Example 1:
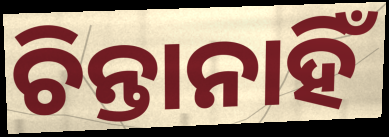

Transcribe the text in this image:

ଚିନ୍ତାନାହିଁ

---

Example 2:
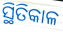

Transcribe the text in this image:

ସ୍ଥିତିକାଳ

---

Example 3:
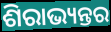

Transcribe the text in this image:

ଶିରାଭ୍ୟନ୍ତର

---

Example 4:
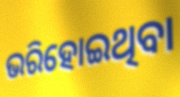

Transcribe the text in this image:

ଭରିହୋଇଥିବା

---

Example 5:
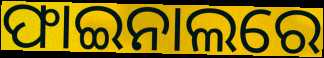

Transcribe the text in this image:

ଫାଇନାଲରେ